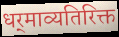
धर्माव्यतिरिक्त